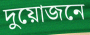
দুয়োজনে